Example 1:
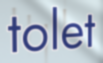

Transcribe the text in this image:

tolet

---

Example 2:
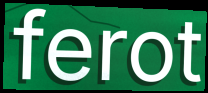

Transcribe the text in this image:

ferot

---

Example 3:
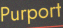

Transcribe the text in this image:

Purport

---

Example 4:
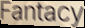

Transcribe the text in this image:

Fantacy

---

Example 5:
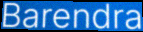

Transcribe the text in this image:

Barendra